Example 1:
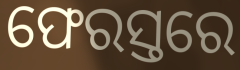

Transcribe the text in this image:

ଫେରସ୍ତରେ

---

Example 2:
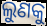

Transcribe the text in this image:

ଲୁଣକୁ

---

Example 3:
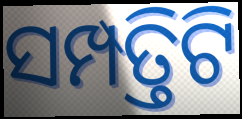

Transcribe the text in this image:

ସମ୍ପତ୍ତିଟି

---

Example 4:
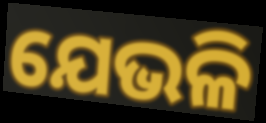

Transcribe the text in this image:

ଯେଭଳି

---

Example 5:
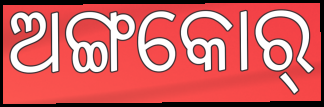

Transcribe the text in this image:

ଅଙ୍ଗକୋର୍